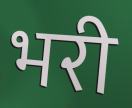
भरी